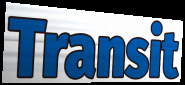
Transit